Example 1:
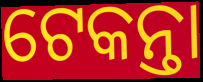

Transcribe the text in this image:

ଟେକନ୍ତା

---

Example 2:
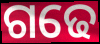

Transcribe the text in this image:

ଗଢେ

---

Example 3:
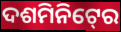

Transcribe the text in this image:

ଦଶମିନିଟ୍‍ରେ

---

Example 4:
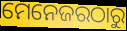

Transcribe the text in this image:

ମେନେଜରଠାରୁ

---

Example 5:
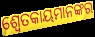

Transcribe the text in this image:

ଶ୍ବେତକାୟମାନଙ୍କର